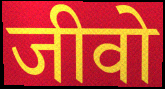
जीवो